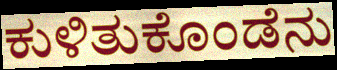
ಕುಳಿತುಕೊಂಡೆನು